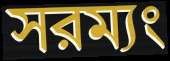
সরম্যং